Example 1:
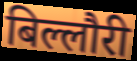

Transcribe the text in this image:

बिल्लौरी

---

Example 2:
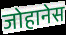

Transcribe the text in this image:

जोहानेस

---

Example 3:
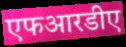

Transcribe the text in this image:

एफआरडीए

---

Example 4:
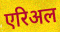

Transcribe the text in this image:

एरिअल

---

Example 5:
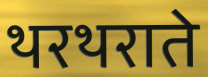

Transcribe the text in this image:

थरथराते